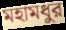
মহামধুর